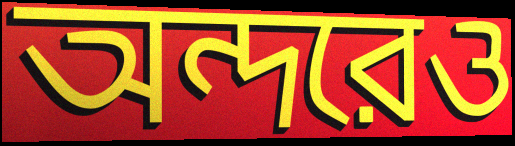
অন্দরেও